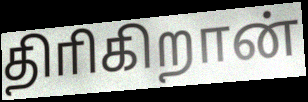
திரிகிறான்